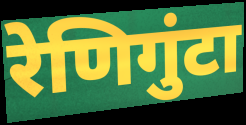
रेणिगुंटा